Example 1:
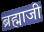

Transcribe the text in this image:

ब्रह्माजी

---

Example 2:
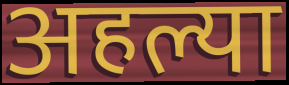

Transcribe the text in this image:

अहल्या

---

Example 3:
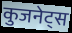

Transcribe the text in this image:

कुजनेट्स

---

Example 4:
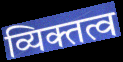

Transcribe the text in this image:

व्यिक्तत्व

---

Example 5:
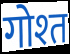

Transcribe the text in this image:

गोश्‍त